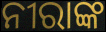
ନୀରାଙ୍କ